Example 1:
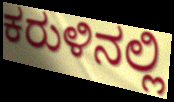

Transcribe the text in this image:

ಕರುಳಿನಲ್ಲಿ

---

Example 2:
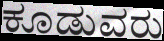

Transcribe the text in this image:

ಕೂಡುವರು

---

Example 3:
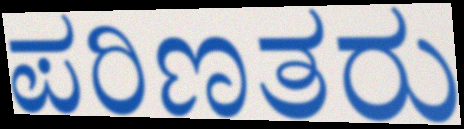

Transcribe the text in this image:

ಪರಿಣತರು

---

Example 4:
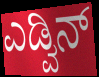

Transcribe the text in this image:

ಎಡ್ವಿನ್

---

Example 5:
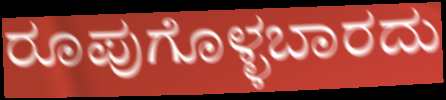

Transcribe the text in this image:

ರೂಪುಗೊಳ್ಳಬಾರದು